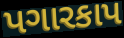
પગારકાપ